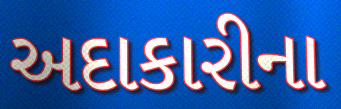
અદાકારીના